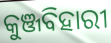
କୁଞ୍ଜବିହାରୀ